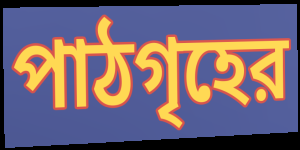
পাঠগৃহের